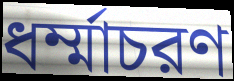
ধর্ম্মাচরণ